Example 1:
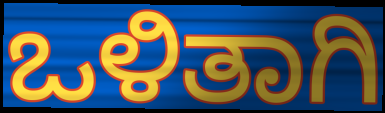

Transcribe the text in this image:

ಒಳಿತಾಗಿ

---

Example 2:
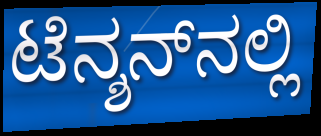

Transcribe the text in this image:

ಟೆನ್ಶನ್‌ನಲ್ಲಿ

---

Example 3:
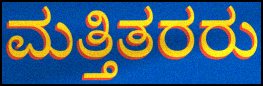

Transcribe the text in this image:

ಮತ್ತಿತರರು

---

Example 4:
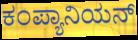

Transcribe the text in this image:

ಕಂಪ್ಯಾನಿಯನ್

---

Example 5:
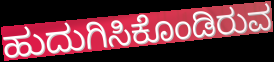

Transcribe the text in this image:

ಹುದುಗಿಸಿಕೊಂಡಿರುವ